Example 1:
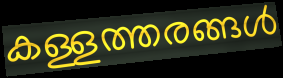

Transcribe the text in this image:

കള്ളത്തരങ്ങൾ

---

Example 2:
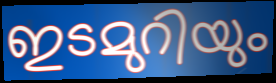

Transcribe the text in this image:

ഇടമുറിയും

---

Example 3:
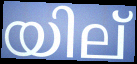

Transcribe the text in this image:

യില്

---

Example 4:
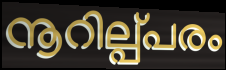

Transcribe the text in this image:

നൂറില്പ്പരം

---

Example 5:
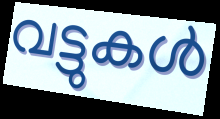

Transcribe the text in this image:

വട്ടുകൾ